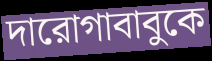
দারোগাবাবুকে